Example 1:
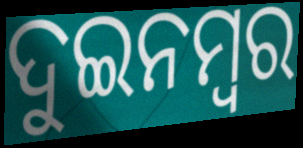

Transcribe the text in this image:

ଦୁଇନମ୍ୱର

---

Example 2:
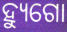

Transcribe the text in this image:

ହ୍ୟୁଗୋ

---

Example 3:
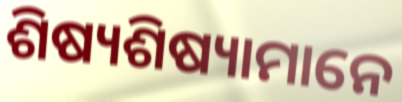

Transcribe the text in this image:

ଶିଷ୍ୟଶିଷ୍ୟାମାନେ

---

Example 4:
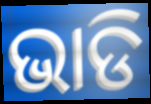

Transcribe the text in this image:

ଭାଡି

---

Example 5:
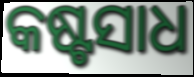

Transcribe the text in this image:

କଷ୍ଟସାଧ